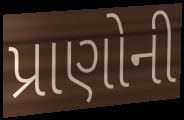
પ્રાણોની